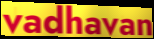
vadhavan